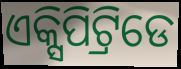
ଏକ୍ସିପିଟ୍ରିଡେ